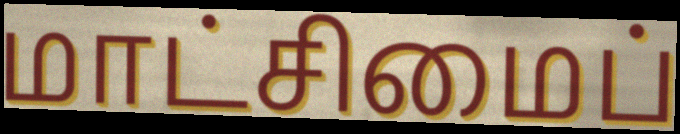
மாட்சிமைப்